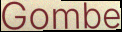
Gombe